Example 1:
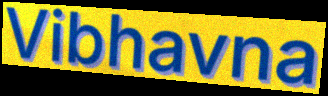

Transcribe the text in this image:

Vibhavna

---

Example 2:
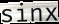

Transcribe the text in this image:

sinx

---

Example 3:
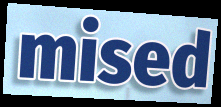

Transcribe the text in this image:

mised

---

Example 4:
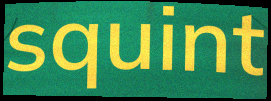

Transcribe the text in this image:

squint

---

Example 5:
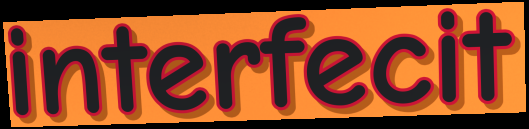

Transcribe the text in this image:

interfecit